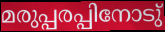
മരുപ്പരപ്പിനോടു്